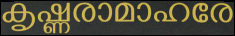
കൃഷ്ണരാമാഹരേ